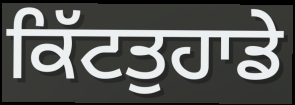
ਕਿੱਟਤੁਹਾਡੇ